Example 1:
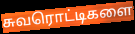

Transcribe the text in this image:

சுவரொட்டிகளை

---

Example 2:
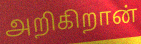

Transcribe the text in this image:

அறிகிறான்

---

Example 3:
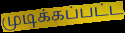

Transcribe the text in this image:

முடிக்கப்பட்ட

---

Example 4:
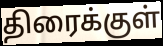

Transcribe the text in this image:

திரைக்குள்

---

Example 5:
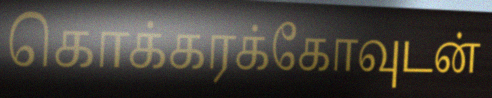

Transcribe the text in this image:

கொக்கரக்கோவுடன்